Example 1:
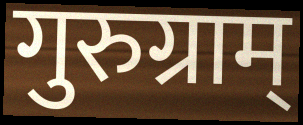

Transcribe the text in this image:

गुरुग्राम्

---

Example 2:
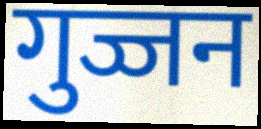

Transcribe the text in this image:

गुज्जन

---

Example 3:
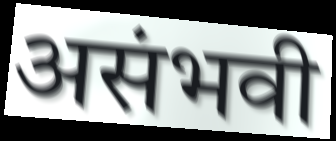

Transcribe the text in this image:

असंभवी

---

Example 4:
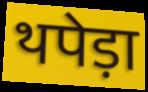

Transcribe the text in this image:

थपेड़ा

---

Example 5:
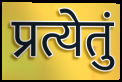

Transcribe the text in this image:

प्रत्येतुं